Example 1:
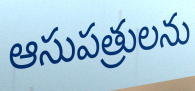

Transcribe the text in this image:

ఆసుపత్రులను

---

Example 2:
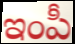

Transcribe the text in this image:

ఇంపీ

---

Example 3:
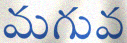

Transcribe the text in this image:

మగువ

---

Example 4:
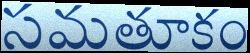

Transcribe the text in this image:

సమతూకం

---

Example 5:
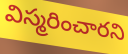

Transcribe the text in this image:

విస్మరించారని